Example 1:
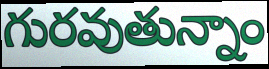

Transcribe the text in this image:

గురవుతున్నాం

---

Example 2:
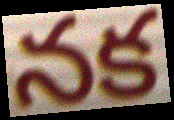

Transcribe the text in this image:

నక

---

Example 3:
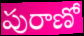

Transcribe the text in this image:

పురాణో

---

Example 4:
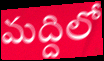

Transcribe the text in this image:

మద్దిలో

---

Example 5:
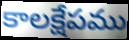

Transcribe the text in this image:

కాలక్షేపము